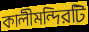
কালীমন্দিরটি